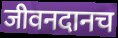
जीवनदानच